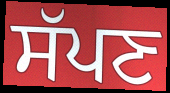
ਸੱਪਣ